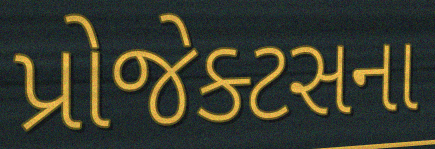
પ્રોજેક્ટસના